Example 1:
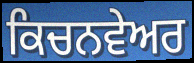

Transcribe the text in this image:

ਕਿਚਨਵੇਅਰ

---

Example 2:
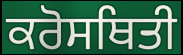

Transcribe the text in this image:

ਕਰੋਸਥਿਤੀ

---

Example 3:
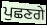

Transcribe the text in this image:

ਪੁਛਣਗੇ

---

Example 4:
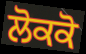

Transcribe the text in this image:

ਲੋਕਕੋ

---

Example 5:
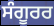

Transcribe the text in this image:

ਸੰਗੂਰਰ